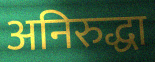
अनिरुद्धा